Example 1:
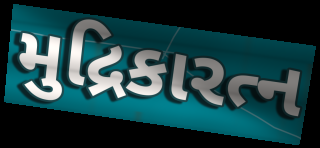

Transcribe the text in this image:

મુદ્રિકારત્ન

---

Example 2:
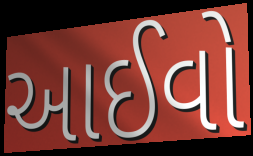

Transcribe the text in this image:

આઈવો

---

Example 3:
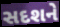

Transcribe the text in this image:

સદશને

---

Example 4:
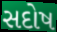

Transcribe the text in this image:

સદોષ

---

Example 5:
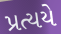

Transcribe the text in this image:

પ્રત્યયે